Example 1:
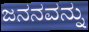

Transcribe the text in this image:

ಜನನವನ್ನು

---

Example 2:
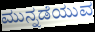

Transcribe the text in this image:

ಮುನ್ನಡೆಯುವ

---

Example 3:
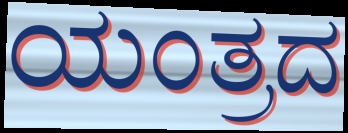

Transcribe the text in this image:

ಯಂತ್ರದ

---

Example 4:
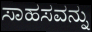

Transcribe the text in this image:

ಸಾಹಸವನ್ನು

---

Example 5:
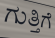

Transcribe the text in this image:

ಗುತ್ತಿಗೆ